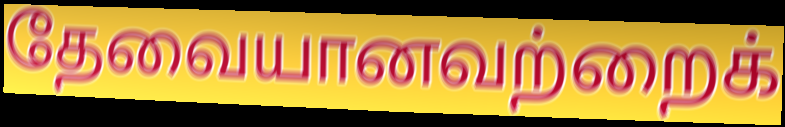
தேவையானவற்றைக்